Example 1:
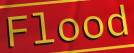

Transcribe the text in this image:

Flood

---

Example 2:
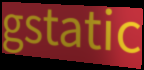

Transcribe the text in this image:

gstatic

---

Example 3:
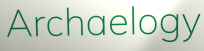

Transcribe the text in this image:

Archaelogy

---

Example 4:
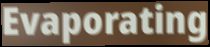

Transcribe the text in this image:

Evaporating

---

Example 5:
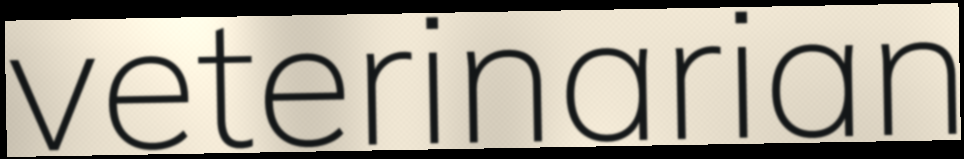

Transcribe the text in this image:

veterinarian